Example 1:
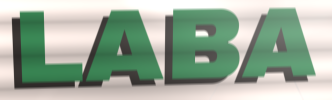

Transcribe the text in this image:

LABA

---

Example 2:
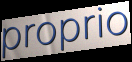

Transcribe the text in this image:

proprio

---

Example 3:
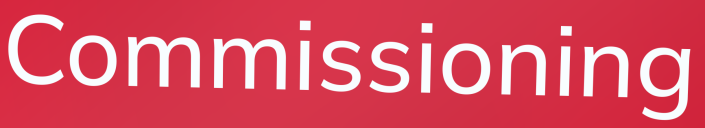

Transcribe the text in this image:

Commissioning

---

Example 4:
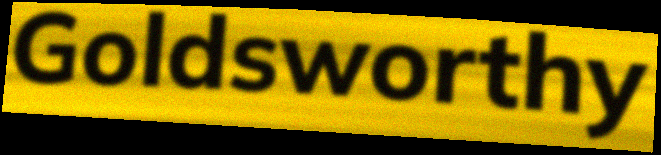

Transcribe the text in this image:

Goldsworthy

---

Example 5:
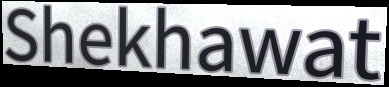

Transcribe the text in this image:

Shekhawat